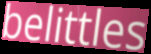
belittles